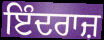
ਇੰਦਰਾਜ਼